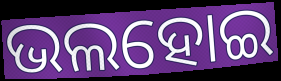
ଭଲହୋଇ